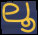
ലൂ